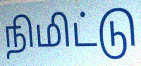
நிமிட்டு